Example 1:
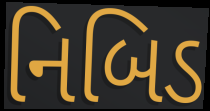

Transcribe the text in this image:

નિબિડ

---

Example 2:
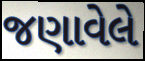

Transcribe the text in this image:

જણાવેલે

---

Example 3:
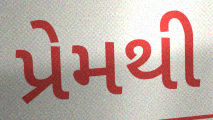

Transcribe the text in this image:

પ્રેમથી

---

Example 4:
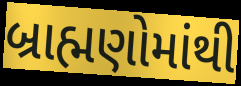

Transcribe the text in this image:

બ્રાહ્મણોમાંથી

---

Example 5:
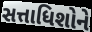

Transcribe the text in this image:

સત્તાધિશોને